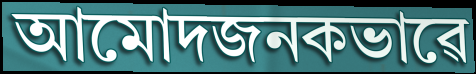
আমোদজনকভাৱে